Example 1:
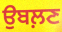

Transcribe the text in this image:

ਉਬਲ਼ਣ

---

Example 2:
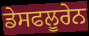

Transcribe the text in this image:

ਡੇਸਫਲੂਰੇਨ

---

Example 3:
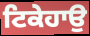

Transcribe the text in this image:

ਟਿਕੇਹਾਉ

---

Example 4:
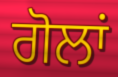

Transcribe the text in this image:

ਗੋਲਾਂ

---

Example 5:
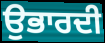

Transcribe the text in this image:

ਉਭਾਰਦੀ